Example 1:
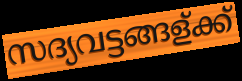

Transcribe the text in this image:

സദ്യവട്ടങ്ങള്ക്ക്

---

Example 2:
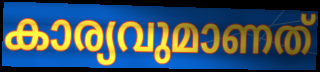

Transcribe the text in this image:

കാര്യവുമാണത്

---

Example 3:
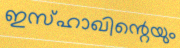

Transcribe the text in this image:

ഇസ്ഹാഖിന്റെയും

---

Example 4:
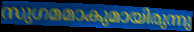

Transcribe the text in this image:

സുഗമമാകുമായിരുന്നു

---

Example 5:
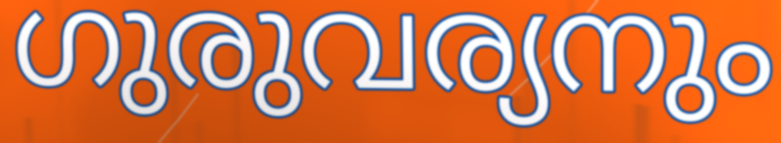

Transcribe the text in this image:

ഗുരുവര്യനും